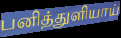
பனித்துளியாய்